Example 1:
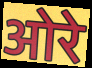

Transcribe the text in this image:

ओरे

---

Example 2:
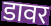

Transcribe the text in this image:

डावर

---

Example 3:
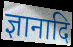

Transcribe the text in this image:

ज्ञानादि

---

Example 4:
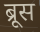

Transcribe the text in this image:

ब्रूस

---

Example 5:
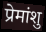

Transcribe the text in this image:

प्रेमांशु